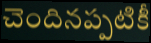
చెందినప్పటికీ